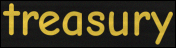
treasury